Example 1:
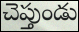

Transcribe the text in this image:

చెప్తుండు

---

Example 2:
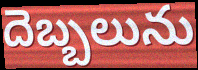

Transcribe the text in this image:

దెబ్బలును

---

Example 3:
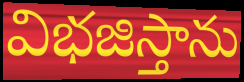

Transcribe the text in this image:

విభజిస్తాను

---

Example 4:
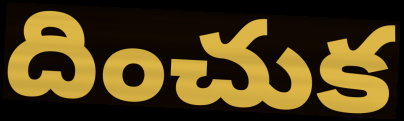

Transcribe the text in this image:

దించుక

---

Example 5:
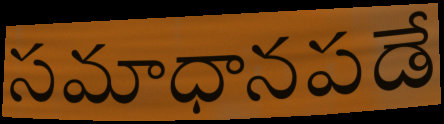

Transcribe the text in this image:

సమాధానపడే